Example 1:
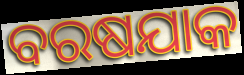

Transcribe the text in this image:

ବରଷଯାକ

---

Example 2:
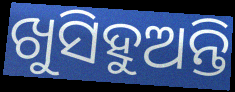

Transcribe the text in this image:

ଖୁସିହୁଅନ୍ତି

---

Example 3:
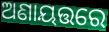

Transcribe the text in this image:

ଅଣାୟତ୍ତରେ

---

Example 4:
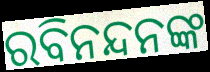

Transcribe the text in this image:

ରବିନନ୍ଦନଙ୍କ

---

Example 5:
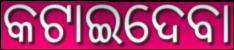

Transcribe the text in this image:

କଟାଇଦେବା